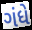
ગંધે